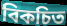
বিকচিত